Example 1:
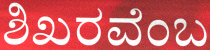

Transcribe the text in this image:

ಶಿಖರವೆಂಬ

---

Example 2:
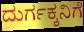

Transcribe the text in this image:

ದುರ್ಗಕ್ಕನಿಗೆ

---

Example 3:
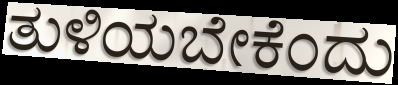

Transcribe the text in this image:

ತುಳಿಯಬೇಕೆಂದು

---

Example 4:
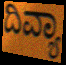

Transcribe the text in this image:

ದಿವ್ಯಾ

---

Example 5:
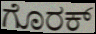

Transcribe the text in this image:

ಗೊರಕ್